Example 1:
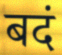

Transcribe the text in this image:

बदं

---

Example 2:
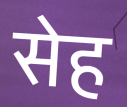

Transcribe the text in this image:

सेह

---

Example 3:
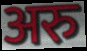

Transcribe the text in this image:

अरु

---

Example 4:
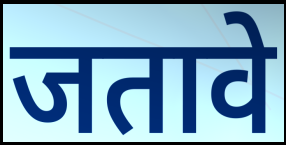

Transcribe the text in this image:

जतावे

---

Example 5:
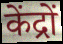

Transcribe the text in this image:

केंद्रों